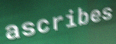
ascribes